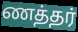
ணத்தர்